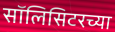
सॉलिसिटरच्या